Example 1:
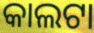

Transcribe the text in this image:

କାଲଟା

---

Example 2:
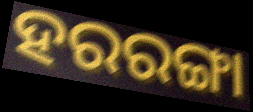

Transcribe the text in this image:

ହରରଙ୍ଗା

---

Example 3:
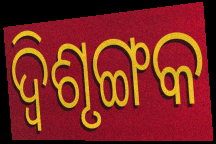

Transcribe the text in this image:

ଦ୍ଵିଶୃଙ୍ଗକ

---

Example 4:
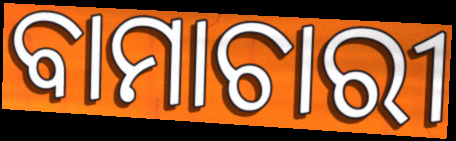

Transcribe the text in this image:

ବାମାଚାରୀ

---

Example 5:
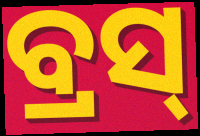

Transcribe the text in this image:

ବ୍ରସ୍